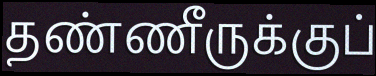
தண்ணீருக்குப்